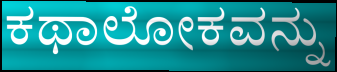
ಕಥಾಲೋಕವನ್ನು